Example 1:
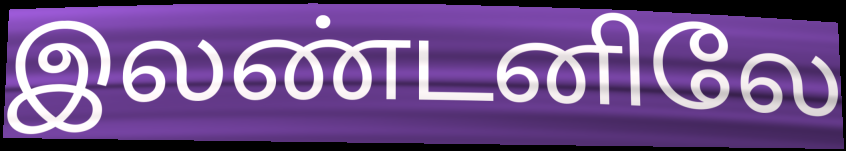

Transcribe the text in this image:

இலண்டனிலே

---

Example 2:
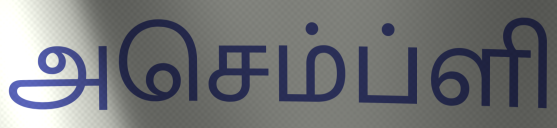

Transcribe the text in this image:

அசெம்ப்ளி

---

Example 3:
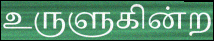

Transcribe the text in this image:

உருளுகின்ற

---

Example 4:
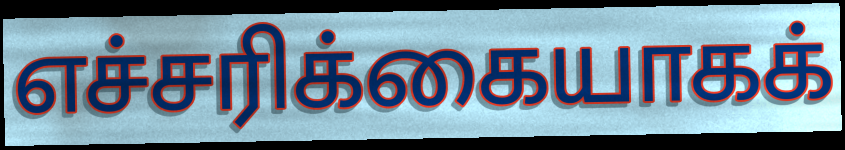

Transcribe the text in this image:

எச்சரிக்கையாகக்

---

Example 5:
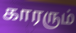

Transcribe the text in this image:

காரரும்